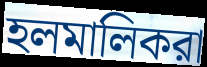
হলমালিকরা